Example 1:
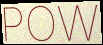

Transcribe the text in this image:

POW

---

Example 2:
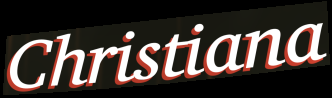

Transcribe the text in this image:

Christiana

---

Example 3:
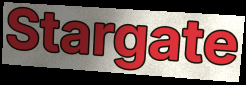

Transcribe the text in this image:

Stargate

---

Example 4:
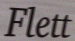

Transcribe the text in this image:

Flett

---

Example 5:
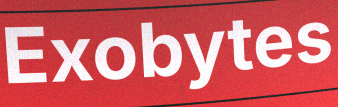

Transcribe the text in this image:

Exobytes